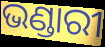
ଭଣ୍ଡାରୀ